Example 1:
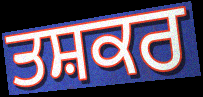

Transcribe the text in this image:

ਤਸ਼ਕਰ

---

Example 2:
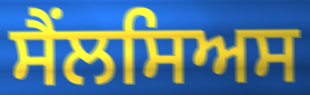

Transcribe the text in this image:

ਸੈਂਲਸਿਅਸ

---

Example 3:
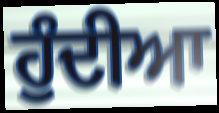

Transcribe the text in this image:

ਹੁੰਦੀਆ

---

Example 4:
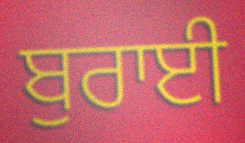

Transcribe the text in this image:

ਬੁਰਾਈ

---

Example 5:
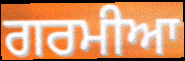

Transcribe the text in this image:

ਗਰਮੀਆ